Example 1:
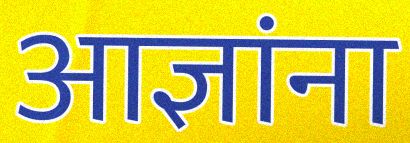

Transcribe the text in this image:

आज्ञांना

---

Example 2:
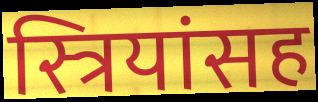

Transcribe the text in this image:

स्त्रियांसह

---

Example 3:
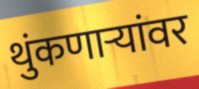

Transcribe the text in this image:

थुंकणाऱ्यांवर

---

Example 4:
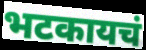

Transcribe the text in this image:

भटकायचं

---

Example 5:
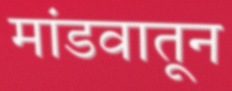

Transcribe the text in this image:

मांडवातून